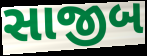
સાજીબ